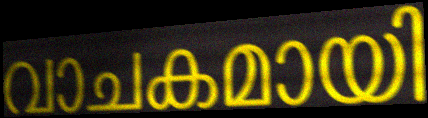
വാചകമായി